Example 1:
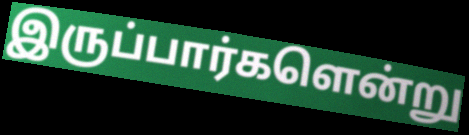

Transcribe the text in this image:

இருப்பார்களென்று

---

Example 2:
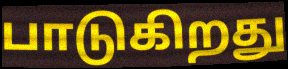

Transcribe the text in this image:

பாடுகிறது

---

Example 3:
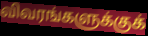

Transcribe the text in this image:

விவரங்களுக்குக்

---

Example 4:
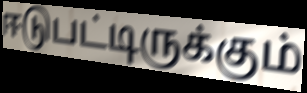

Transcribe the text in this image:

ஈடுபட்டிருக்கும்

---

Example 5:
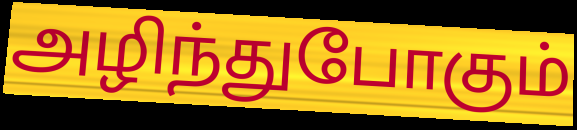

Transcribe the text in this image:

அழிந்துபோகும்